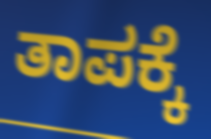
ತಾಪಕ್ಕೆ